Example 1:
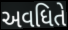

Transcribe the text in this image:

અવધિતે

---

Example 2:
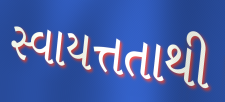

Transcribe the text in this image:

સ્વાયત્તતાથી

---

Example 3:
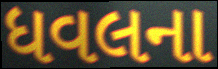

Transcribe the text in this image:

ધવલના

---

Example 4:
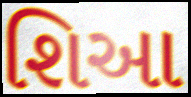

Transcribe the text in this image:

શિઆ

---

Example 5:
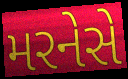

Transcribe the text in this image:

મરનેસે